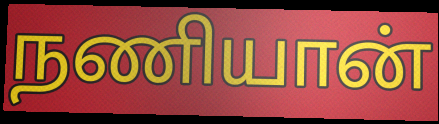
நணியான்